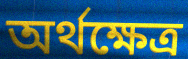
অৰ্থক্ষেত্ৰ